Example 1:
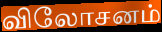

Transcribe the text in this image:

விலோசனம்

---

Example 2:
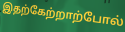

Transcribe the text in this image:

இதற்கேற்றாற்போல்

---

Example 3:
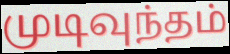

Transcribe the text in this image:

முடிவுந்தம்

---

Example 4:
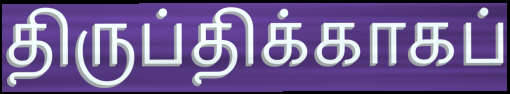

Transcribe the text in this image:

திருப்திக்காகப்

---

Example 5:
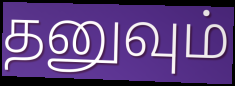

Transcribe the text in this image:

தனுவும்